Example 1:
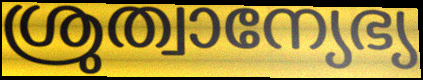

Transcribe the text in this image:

ശ്രുത്വാന്യേഭ്യ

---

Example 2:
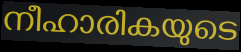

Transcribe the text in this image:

നീഹാരികയുടെ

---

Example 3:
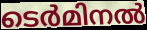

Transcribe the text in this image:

ടെർമിനൽ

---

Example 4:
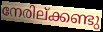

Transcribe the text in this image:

നേരില്ക്കണ്ടു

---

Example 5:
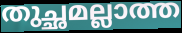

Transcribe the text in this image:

തുച്ഛമല്ലാത്ത